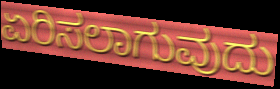
ಏರಿಸಲಾಗುವುದು